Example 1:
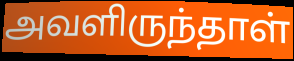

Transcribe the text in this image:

அவளிருந்தாள்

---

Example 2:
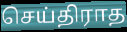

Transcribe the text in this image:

செய்திராத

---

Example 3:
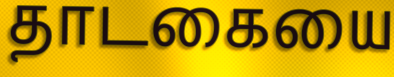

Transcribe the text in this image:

தாடகையை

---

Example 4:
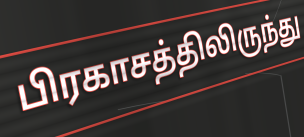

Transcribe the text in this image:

பிரகாசத்திலிருந்து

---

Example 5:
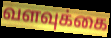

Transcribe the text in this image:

வளவுக்கை